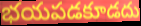
భయపడకూడదు